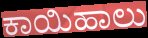
ಕಾಯಿಹಾಲು